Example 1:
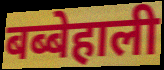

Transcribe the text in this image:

बब्बेहाली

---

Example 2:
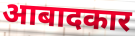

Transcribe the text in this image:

आबादकार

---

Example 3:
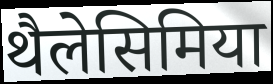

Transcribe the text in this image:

थैलेसिमिया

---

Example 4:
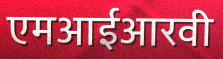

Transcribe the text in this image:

एमआईआरवी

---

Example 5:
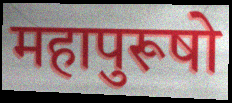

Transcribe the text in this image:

महापुरूषो